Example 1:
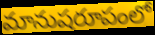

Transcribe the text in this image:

మానుషరూపంలో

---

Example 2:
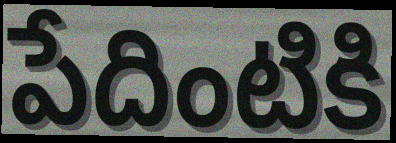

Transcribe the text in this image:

పేదింటికి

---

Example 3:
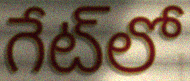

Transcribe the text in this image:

గేట్‌లో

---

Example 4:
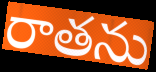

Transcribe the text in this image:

రాతను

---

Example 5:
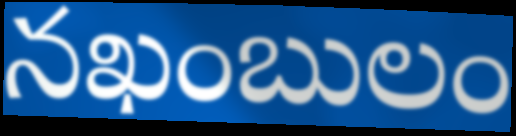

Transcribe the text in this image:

నఖంబులం